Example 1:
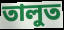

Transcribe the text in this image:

তালুত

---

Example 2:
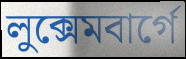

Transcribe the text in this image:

লুক্সেমবার্গে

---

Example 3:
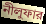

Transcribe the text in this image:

নীলুফার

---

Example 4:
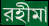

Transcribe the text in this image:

রহীমা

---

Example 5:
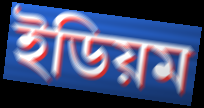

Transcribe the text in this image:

ইডিয়ম